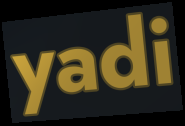
yadi